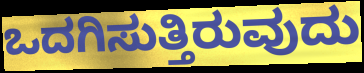
ಒದಗಿಸುತ್ತಿರುವುದು